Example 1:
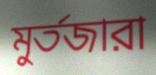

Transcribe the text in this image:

মুর্তজারা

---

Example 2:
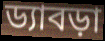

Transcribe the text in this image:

ড্যাবড়া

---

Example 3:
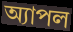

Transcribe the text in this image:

অ্যাপল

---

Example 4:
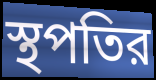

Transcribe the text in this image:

স্থপতির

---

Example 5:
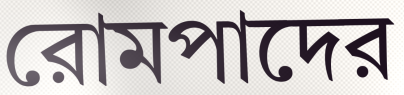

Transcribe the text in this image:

রোমপাদের